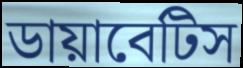
ডায়াবেটিস